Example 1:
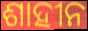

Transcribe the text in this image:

ଶାହୀନ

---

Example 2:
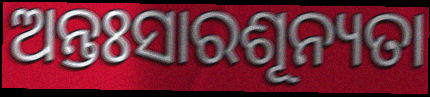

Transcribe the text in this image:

ଅନ୍ତଃସାରଶୂନ୍ୟତା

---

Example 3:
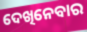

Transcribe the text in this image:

ଦେଖିନେବାର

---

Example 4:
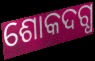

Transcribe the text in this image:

ଶୋକଦଗ୍ଧ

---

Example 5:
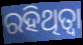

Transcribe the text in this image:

ରହିଥିତ୍ବା